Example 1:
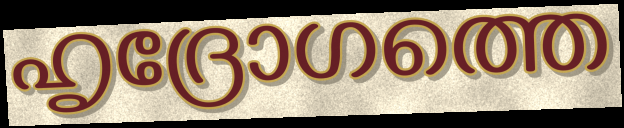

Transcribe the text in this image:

ഹൃദ്രോഗത്തെ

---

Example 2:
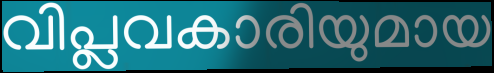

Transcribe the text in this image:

വിപ്ലവകാരിയുമായ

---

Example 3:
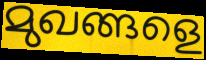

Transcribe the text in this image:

മുഖങ്ങളെ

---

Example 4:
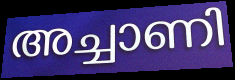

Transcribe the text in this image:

അച്ചാണി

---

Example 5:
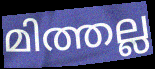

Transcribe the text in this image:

മിത്തല്ല